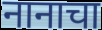
नानाचा